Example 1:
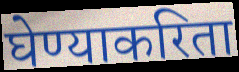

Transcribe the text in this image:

घेण्याकरिता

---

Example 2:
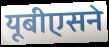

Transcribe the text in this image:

यूबीएसने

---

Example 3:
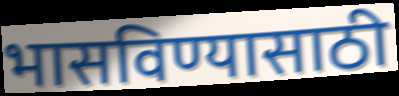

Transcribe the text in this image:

भासविण्यासाठी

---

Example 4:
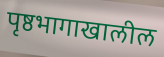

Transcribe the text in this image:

पृष्ठभागाखालील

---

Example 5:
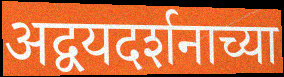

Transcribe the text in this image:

अद्वयदर्शनाच्या